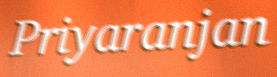
Priyaranjan